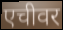
एचीवर